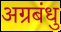
अग्रबंधु